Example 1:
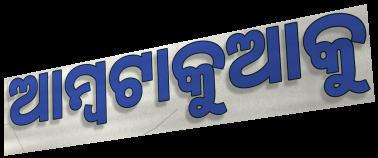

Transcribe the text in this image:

ଆମ୍ବଟାକୁଆକୁ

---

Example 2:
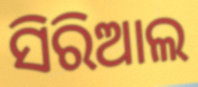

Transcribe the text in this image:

ସିରିଆଲ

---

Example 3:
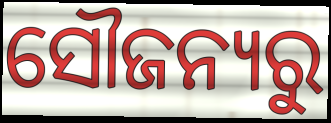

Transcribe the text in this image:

ସୌଜନ୍ୟରୁ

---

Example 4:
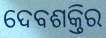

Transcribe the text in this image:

ଦେବଶକ୍ତିର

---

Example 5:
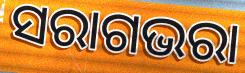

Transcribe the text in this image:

ସରାଗଭରା